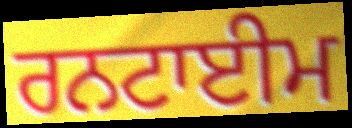
ਰਨਟਾਈਮ